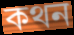
কথন